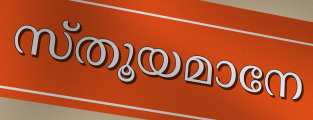
സ്തൂയമാനേ